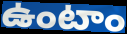
ఉంటాం